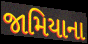
જામિયાના